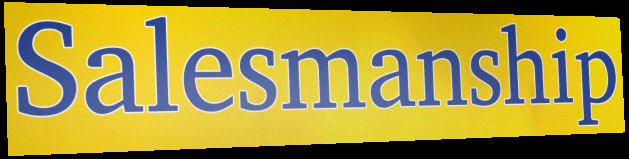
Salesmanship